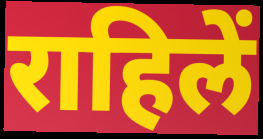
राहिलें